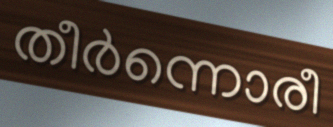
തീർന്നൊരീ